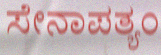
ಸೇನಾಪತ್ಯಂ